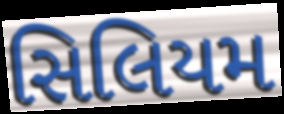
સિલિયમ